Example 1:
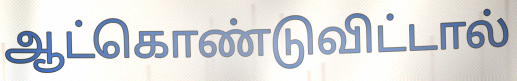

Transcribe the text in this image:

ஆட்கொண்டுவிட்டால்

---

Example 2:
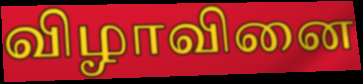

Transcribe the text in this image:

விழாவினை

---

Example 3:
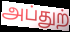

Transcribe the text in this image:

அப்துற்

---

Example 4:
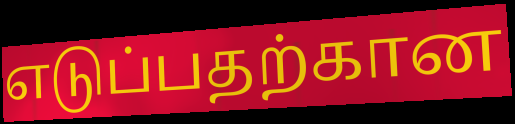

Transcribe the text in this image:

எடுப்பதற்கான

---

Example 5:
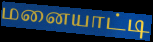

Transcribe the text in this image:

மனையாட்டி